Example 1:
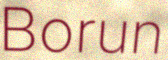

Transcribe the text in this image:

Borun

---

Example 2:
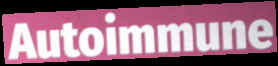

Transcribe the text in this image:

Autoimmune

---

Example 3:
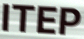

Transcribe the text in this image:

ITEP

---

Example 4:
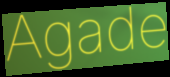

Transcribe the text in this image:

Agade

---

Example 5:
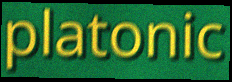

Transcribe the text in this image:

platonic